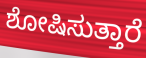
ಶೋಷಿಸುತ್ತಾರೆ